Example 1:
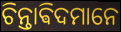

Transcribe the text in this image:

ଚିନ୍ତାଵିଦମାନେ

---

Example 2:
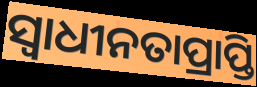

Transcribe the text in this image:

ସ୍ୱାଧୀନତାପ୍ରାପ୍ତି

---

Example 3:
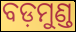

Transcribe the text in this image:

ବଡ଼ମୁଣ୍ଡ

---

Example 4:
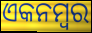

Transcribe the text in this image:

ଏକନମ୍ବର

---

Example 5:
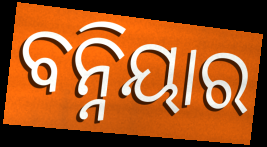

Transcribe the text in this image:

ବନ୍ନିୟାର